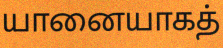
யானையாகத்